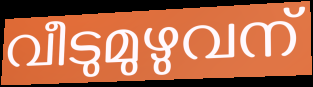
വീടുമുഴുവന്